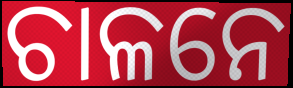
ଚାଳନେ